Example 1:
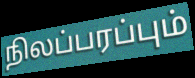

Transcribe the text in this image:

நிலப்பரப்பும்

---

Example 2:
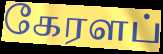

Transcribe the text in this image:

கேரளப்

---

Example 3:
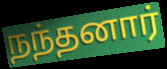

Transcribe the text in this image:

நந்தனார்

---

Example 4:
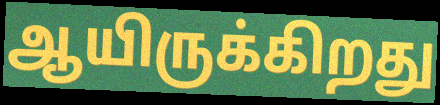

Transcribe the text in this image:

ஆயிருக்கிறது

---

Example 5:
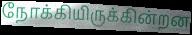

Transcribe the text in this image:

நோக்கியிருக்கின்றன